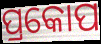
ପ୍ରକୋପ